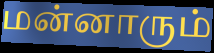
மன்னாரும்